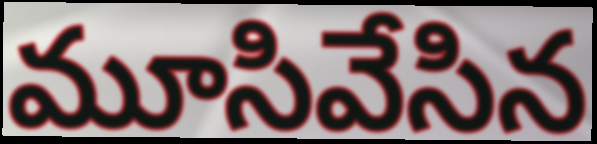
మూసివేసిన